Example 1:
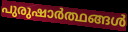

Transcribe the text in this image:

പുരുഷാർത്ഥങ്ങൾ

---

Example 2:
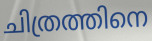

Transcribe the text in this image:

ചിത്രത്തിനെ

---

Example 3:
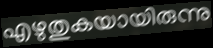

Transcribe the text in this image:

എഴുതുകയായിരുന്നു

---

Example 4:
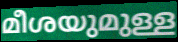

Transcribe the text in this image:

മീശയുമുള്ള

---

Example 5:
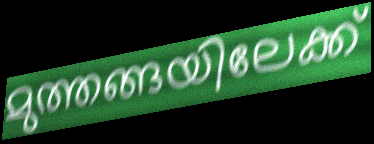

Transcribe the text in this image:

മുത്തങ്ങയിലേക്ക്